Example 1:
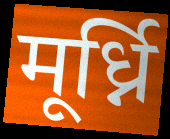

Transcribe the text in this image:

मूर्ध्नि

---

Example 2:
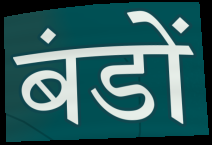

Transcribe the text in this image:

बंडों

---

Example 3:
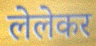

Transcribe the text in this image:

लेलेकर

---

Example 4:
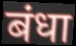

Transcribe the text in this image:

बंधा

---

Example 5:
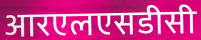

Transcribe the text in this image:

आरएलएसडीसी